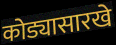
कोड्यासारखे